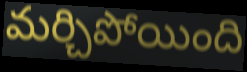
మర్చిపోయింది